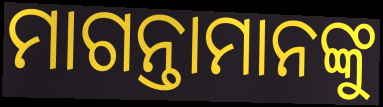
ମାଗନ୍ତାମାନଙ୍କୁ